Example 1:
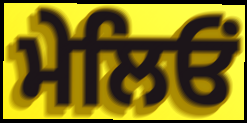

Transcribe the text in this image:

ਮੇਲਿਓਂ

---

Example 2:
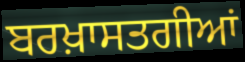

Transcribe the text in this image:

ਬਰਖ਼ਾਸਤਗੀਆਂ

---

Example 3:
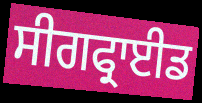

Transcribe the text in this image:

ਸੀਗਫ੍ਰਾਈਡ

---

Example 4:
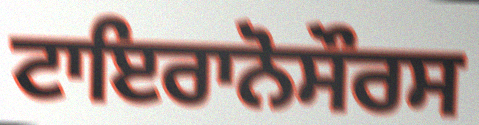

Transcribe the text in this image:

ਟਾਇਰਾਨੋਸੌਰਸ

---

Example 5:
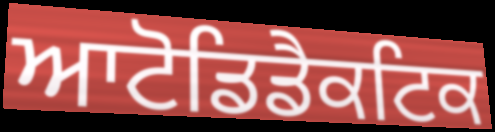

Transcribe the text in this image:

ਆਟੋਡਿਡੈਕਟਿਕ